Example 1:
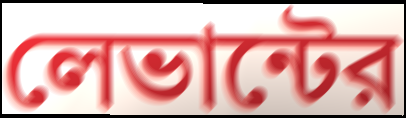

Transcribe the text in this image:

লেভান্টের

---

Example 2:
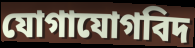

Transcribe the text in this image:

যোগাযোগবিদ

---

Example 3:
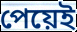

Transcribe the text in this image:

পেয়েই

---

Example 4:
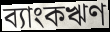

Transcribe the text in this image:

ব্যাংকঋণ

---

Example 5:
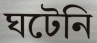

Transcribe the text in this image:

ঘটেনি